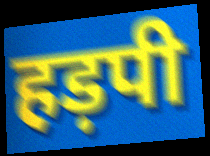
हड़पी